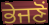
ਭੇਜਣੋਂ